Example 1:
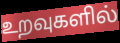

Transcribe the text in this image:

உறவுகளில்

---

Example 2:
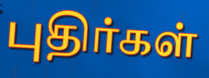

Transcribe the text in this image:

புதிர்கள்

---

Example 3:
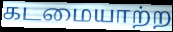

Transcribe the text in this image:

கடமையாற்ற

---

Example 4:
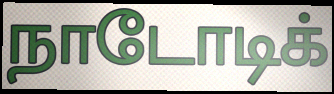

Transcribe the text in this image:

நாடோடிக்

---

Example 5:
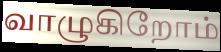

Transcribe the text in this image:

வாழுகிறோம்